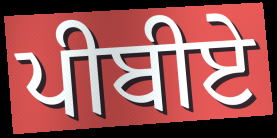
ਪੀਬੀਏ